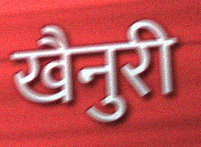
खैनुरी